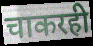
चाकरही